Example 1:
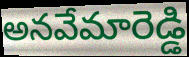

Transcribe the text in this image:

అనవేమారెడ్డి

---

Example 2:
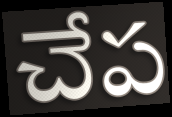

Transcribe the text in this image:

చేప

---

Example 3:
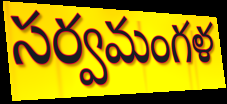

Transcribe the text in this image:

సర్వమంగళ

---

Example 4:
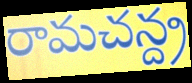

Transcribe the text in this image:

రామచన్ద్ర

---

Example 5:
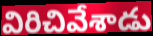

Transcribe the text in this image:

విరిచివేశాడు